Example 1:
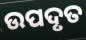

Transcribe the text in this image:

ଉପଦୃତ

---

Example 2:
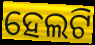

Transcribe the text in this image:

ହେଲଟି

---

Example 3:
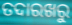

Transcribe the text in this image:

ତଦାରଖରୁ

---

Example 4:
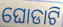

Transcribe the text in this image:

ଘୋଡାଟି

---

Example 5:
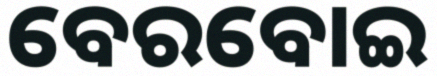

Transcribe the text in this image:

ବେରବୋଇ